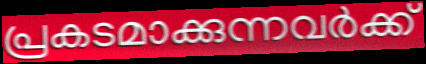
പ്രകടമാക്കുന്നവർക്ക്